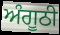
ਅੰਗੂਠੀ